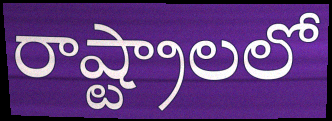
రాష్ట్రాలలో